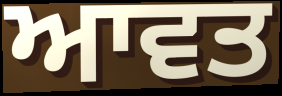
ਆਵਤ